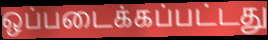
ஒப்படைக்கப்பட்டது